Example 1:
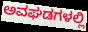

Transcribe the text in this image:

ಅವಘಡಗಳಲ್ಲಿ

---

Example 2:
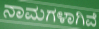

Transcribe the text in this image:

ನಾಮಗಳಾಗಿವೆ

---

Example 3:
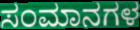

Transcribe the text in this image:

ಸಂಮಾನಗಳ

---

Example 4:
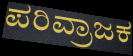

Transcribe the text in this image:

ಪರಿವ್ರಾಜಕ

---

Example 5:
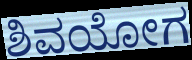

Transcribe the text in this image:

ಶಿವಯೋಗ